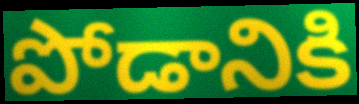
పోడానికి